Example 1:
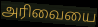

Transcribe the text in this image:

அரிவையை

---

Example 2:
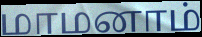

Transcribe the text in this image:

மாமனாம்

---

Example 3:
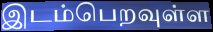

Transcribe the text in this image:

இடம்பெறவுள்ள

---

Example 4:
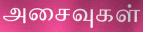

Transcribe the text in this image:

அசைவுகள்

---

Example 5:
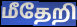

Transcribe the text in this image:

மீதேறி